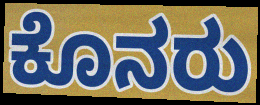
ಕೊನರು